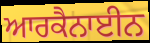
ਆਰਕੈਨਾਈਨ